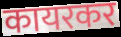
कायरकर